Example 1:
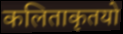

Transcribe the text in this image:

कलिताकृतयो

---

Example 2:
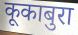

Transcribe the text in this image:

कूकाबुरा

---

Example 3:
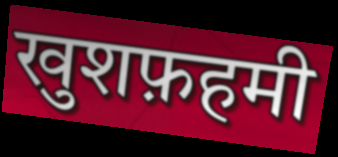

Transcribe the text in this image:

खुशफ़हमी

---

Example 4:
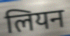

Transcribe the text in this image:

लियन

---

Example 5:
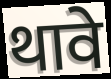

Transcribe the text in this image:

थावे